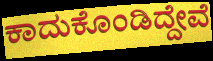
ಕಾದುಕೊಂಡಿದ್ದೇವೆ